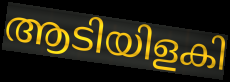
ആടിയിളകി